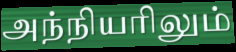
அந்நியரிலும்